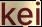
kei